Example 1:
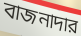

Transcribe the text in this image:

বাজনাদার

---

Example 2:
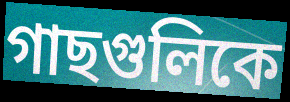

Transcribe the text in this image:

গাছগুলিকে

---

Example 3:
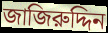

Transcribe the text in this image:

জাজিরুদ্দিন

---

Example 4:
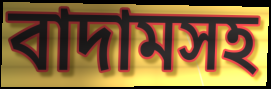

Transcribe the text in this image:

বাদামসহ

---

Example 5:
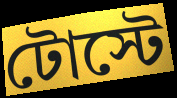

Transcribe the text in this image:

টোস্টে